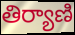
తిర్యాణి